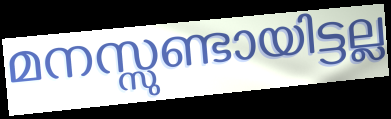
മനസ്സുണ്ടായിട്ടല്ല